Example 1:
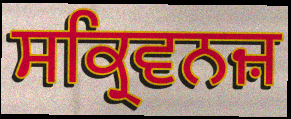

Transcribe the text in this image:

ਸਕ੍ਰਿਵਨਜ਼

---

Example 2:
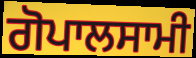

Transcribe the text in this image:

ਗੋਪਾਲਸਾਮੀ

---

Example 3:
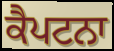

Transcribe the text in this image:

ਕੈਪਟਨਾ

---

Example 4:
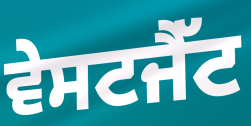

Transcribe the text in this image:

ਵੇਸਟਜੈੱਟ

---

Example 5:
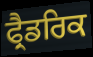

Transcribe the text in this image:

ਫ੍ਰੈਡਰਿਕ